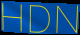
HDN